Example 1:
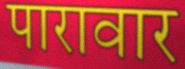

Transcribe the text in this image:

पारावार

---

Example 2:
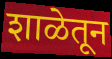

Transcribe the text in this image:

शाळेतून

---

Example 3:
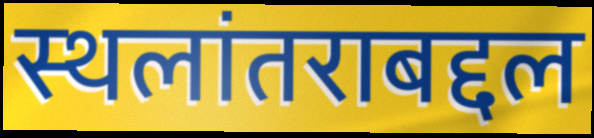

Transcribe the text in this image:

स्थलांतराबद्दल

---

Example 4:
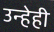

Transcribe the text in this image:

उन्हेही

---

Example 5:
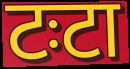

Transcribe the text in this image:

टःटा